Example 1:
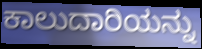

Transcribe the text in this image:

ಕಾಲುದಾರಿಯನ್ನು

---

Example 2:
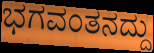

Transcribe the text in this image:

ಭಗವಂತನದ್ದು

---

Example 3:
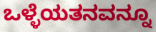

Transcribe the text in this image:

ಒಳ್ಳೆಯತನವನ್ನೂ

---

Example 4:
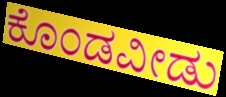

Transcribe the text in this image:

ಕೊಂಡವೀಡು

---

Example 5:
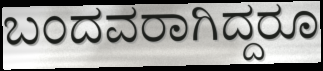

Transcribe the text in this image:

ಬಂದವರಾಗಿದ್ದರೂ